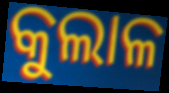
କୁଲାଳ